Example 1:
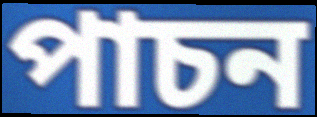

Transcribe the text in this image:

পাচন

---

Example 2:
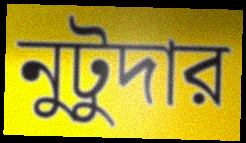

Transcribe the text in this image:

নুটুদার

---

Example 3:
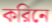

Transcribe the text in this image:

করিনে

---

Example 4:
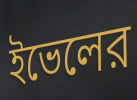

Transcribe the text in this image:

ইভেলের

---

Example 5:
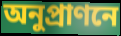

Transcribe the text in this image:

অনুপ্রাণনে